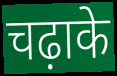
चढ़ाके